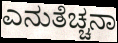
ಎನುತೆಚ್ಚನಾ